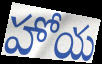
హోయ